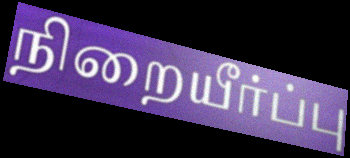
நிறையீர்ப்பு